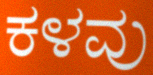
ಕಳವು